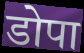
डोपा